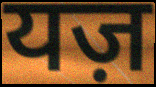
यज़